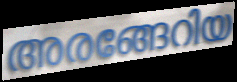
അരങ്ങേറിയ